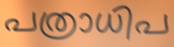
പത്രാധിപ